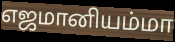
எஜமானியம்மா